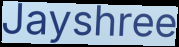
Jayshree